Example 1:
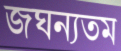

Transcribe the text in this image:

জঘন্যতম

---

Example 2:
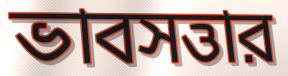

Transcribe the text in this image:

ভাবসত্তার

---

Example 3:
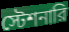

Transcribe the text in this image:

স্টেশনারি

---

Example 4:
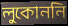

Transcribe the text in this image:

লুকোননি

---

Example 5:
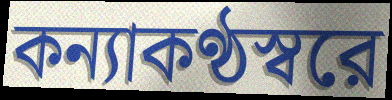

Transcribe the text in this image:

কন্যাকণ্ঠস্বরে